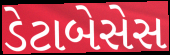
ડેટાબેસેસ